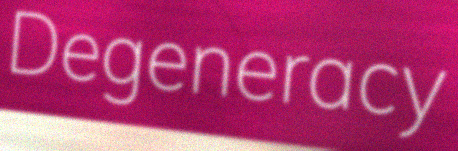
Degeneracy